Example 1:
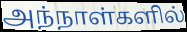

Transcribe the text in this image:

அந்நாள்களில்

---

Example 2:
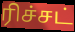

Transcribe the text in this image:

ரிச்சட்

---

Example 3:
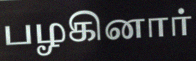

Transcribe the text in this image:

பழகினார்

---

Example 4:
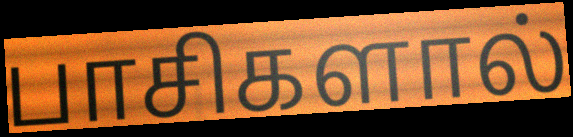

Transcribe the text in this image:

பாசிகளால்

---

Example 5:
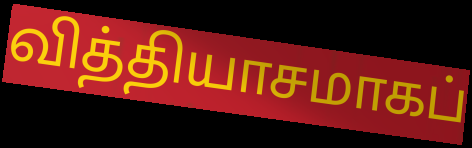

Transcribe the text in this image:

வித்தியாசமாகப்